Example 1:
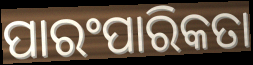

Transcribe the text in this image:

ପାରଂପାରିକତା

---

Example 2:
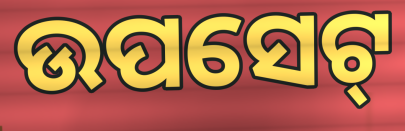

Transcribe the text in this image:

ଉପସେଟ୍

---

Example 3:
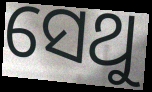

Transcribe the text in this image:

ସେଥୁ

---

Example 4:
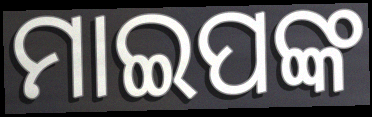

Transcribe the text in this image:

ମାଇପଙ୍କ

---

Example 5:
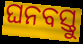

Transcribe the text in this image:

ଘନବସ୍ତୁ